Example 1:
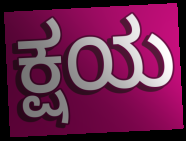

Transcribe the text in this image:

ಕ್ಷಯ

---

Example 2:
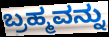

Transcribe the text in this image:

ಬ್ರಹ್ಮವನ್ನು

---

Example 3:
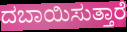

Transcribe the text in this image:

ದಬಾಯಿಸುತ್ತಾರೆ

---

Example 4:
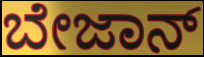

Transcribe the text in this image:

ಬೇಜಾನ್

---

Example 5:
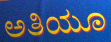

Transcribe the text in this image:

ಅತಿಯೂ